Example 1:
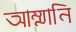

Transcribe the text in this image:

আম্মানি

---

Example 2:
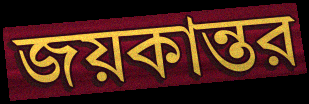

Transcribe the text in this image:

জয়কান্তর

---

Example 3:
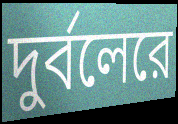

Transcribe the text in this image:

দুর্বলেরে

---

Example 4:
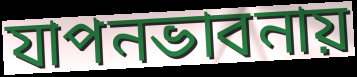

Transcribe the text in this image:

যাপনভাবনায়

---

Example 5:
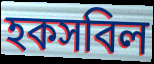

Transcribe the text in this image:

হকসবিল